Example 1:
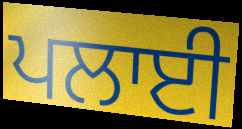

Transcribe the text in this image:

ਪਲਾਈ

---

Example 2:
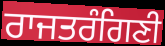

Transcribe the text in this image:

ਰਾਜਤਰੰਗਿਣੀ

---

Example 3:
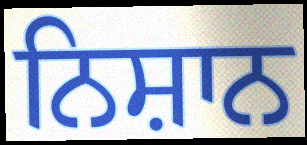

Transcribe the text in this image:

ਨਿਸ਼ਾਨ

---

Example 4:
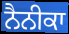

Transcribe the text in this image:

ਨੈਨੀਕਾ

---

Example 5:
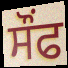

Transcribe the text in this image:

ਸੌਂਫ